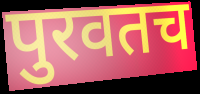
पुरवतच